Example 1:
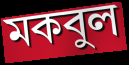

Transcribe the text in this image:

মকবুল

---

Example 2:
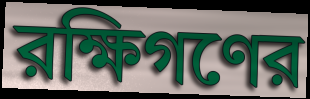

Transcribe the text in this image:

রক্ষিগণের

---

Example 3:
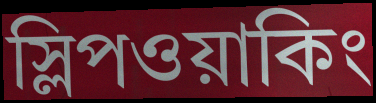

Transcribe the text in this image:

স্লিপওয়াকিং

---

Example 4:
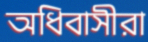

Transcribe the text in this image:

অধিবাসীরা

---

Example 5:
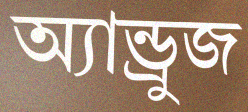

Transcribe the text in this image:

অ্যান্ড্রুজ